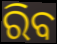
ରିବ